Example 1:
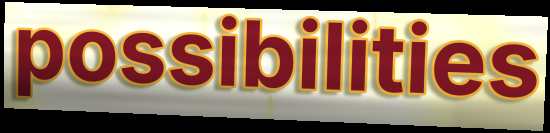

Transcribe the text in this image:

possibilities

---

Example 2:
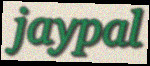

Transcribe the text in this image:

jaypal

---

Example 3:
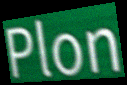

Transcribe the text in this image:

Plon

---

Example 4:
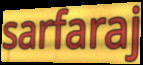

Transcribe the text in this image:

sarfaraj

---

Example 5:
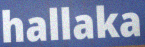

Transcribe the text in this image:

hallaka